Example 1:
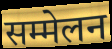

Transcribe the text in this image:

सम्‍मेलन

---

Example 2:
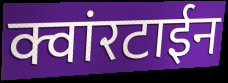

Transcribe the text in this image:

क्वांरटाईन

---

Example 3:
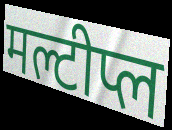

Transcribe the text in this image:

मल्टीप्ल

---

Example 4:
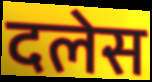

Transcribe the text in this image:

दलेस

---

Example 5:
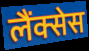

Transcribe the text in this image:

लैंक्सेस